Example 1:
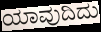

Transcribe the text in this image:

ಯಾವುದಿದು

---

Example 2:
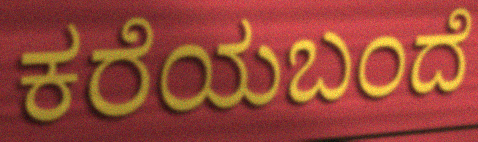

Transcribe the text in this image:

ಕರೆಯಬಂದೆ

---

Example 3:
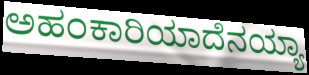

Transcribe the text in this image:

ಅಹಂಕಾರಿಯಾದೆನಯ್ಯಾ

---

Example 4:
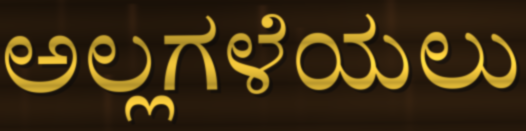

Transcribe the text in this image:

ಅಲ್ಲಗಳೆಯಲು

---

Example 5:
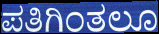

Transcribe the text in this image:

ಪತಿಗಿಂತಲೂ